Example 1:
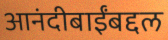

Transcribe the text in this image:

आनंदीबाईंबद्दल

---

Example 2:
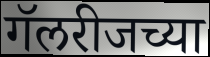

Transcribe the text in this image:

गॅलरीजच्या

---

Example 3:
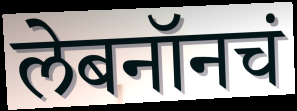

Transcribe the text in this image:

लेबनॉनचं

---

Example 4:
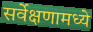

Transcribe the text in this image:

सर्वेक्षणामध्ये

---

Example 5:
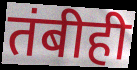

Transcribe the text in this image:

तंबीही